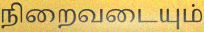
நிறைவடையும்